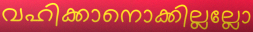
വഹിക്കാനൊക്കില്ലല്ലോ